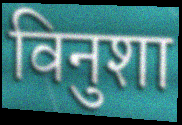
विनुशा